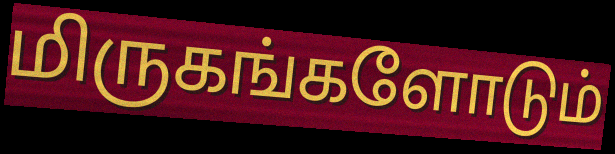
மிருகங்களோடும்